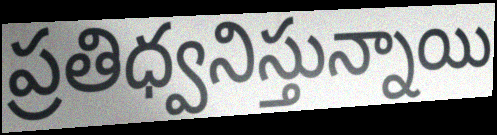
ప్రతిధ్వనిస్తున్నాయి